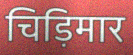
चिड़िमार